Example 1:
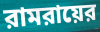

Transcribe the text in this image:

রামরায়ের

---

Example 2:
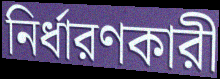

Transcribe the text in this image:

নির্ধারণকারী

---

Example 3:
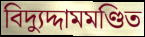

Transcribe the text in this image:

বিদ্যুদ্দামমণ্ডিত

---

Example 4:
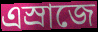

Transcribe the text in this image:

এস্রাজে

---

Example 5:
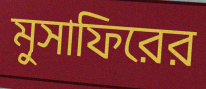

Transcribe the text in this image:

মুসাফিরের